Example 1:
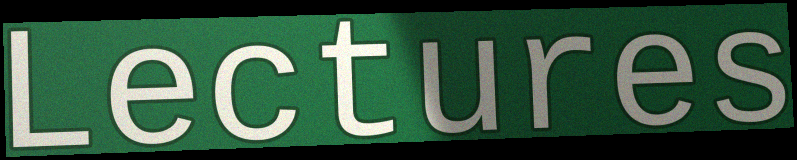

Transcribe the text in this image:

Lectures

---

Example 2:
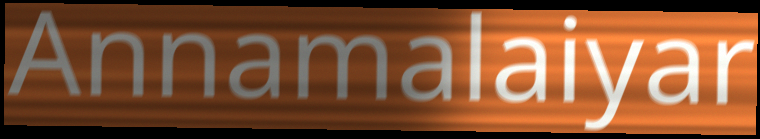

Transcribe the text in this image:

Annamalaiyar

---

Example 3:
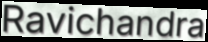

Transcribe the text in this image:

Ravichandra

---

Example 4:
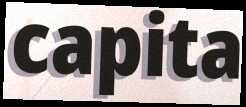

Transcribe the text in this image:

capita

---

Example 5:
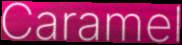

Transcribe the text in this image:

Caramel